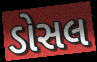
ડોસલ